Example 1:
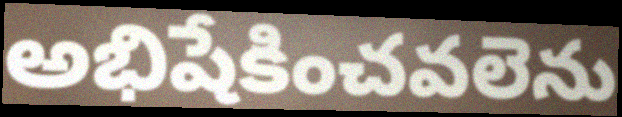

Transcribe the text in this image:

అభిషేకించవలెను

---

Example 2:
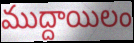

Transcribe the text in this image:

ముద్దాయిలం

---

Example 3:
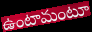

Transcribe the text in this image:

ఉంటామంటూ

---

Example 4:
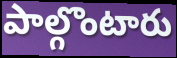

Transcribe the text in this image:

పాల్గొంటారు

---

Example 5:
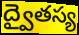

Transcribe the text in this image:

ద్వైతస్య